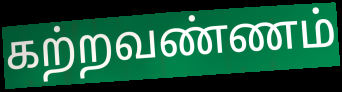
கற்றவண்ணம்